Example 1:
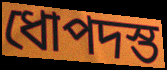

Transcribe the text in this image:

ধোপদস্ত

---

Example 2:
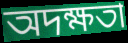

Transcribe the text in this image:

অদক্ষতা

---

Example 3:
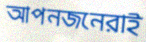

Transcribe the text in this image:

আপনজনেরাই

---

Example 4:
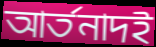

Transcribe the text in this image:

আর্তনাদই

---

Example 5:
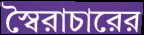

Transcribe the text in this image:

স্বৈরাচারের